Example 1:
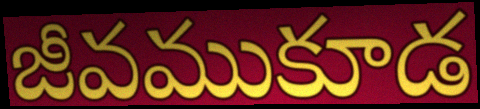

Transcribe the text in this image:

జీవముకూడ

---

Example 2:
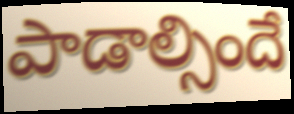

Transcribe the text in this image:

పాడాల్సిందే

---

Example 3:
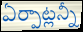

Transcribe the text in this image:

ఏర్పాట్లన్నీ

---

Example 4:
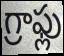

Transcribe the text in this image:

గ్రాఫ్లు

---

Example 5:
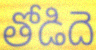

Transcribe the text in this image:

తోడిదె